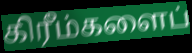
கிரீம்களைப்